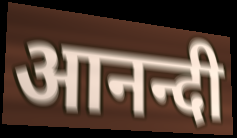
आनन्दी